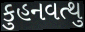
કુહનવત્થુ